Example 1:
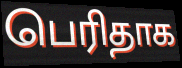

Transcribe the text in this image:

பெரிதாக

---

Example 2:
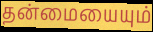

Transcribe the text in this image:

தன்மையையும்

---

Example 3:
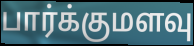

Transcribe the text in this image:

பார்க்குமளவு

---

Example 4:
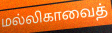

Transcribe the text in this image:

மல்லிகாவைத்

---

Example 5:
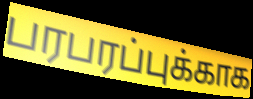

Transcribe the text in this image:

பரபரப்புக்காக